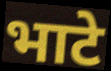
भाटे